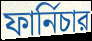
ফার্নিচার